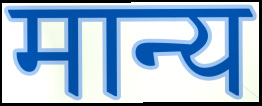
मान्य